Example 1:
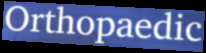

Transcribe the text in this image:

Orthopaedic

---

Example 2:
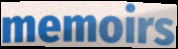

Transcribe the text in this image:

memoirs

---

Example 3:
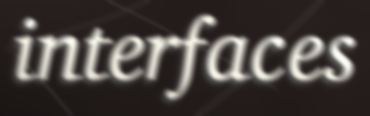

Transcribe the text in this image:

interfaces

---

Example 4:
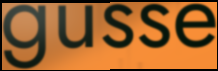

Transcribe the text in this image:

gusse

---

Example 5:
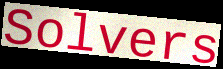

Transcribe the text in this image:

Solvers